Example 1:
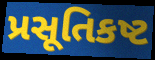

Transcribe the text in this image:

પ્રસૂતિકષ્ટ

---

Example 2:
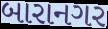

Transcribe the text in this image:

બારાનગર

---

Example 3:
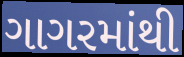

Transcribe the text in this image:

ગાગરમાંથી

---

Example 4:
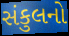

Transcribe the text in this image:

સંકુલનો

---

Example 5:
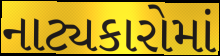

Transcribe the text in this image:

નાટ્યકારોમાં